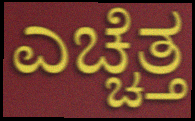
ಎಚ್ಚೆತ್ತ